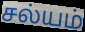
சல்யம்